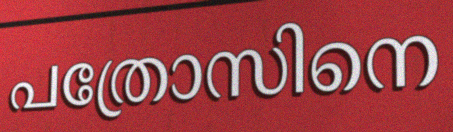
പത്രോസിനെ